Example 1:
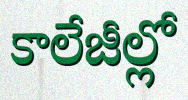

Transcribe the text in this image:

కాలేజీల్లో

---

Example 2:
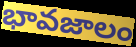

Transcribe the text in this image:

భావజాలం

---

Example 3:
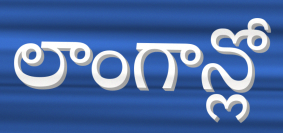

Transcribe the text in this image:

లాంగాన్లో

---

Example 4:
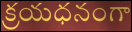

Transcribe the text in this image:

క్రయధనంగా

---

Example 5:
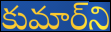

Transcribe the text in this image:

కుమార్‌ని